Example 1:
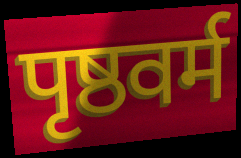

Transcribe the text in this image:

पृष्ठवर्म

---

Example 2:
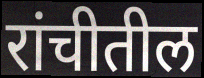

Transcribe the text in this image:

रांचीतील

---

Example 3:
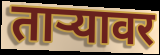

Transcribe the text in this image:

ताऱ्यावर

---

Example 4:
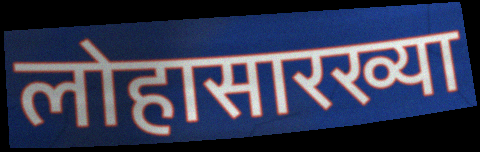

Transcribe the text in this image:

लोहासारख्या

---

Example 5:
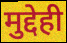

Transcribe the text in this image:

मुद्देही